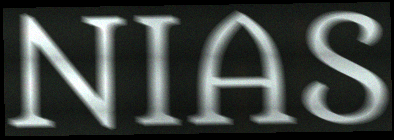
NIAS